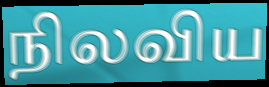
நிலவிய